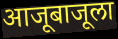
आजूबाजूला